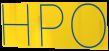
HPO